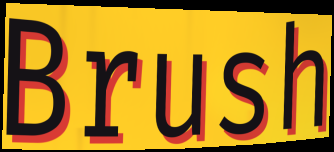
Brush